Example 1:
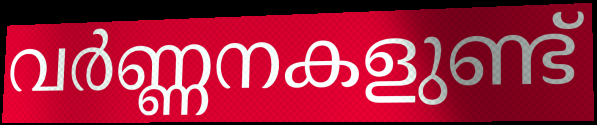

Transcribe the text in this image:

വർണ്ണനകളുണ്ട്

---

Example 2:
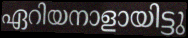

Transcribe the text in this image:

ഏറിയനാളായിട്ടു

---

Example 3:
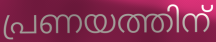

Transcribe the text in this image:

പ്രണയത്തിന്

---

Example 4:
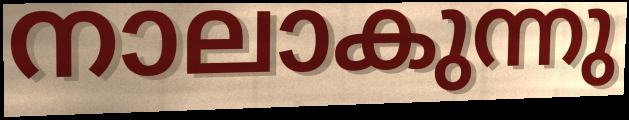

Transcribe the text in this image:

നാലാകുന്നു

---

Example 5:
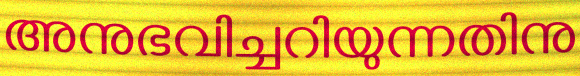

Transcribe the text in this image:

അനുഭവിച്ചറിയുന്നതിനു